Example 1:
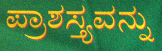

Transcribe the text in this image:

ಪ್ರಾಶಸ್ತ್ಯವನ್ನು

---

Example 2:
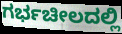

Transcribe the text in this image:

ಗರ್ಭಚೀಲದಲ್ಲಿ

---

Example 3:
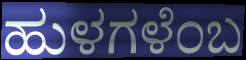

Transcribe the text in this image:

ಹುಳಗಳೆಂಬ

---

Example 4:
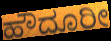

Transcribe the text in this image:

ಹೌದೂರೀ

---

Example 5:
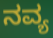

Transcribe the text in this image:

ನವ್ಯ